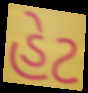
હેટ